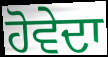
ਹੋਵੇਦਾ